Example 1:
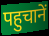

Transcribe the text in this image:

पहुचानें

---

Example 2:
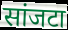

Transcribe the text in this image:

सांजटा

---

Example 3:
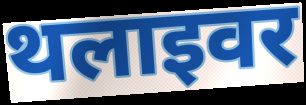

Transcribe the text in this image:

थलाइवर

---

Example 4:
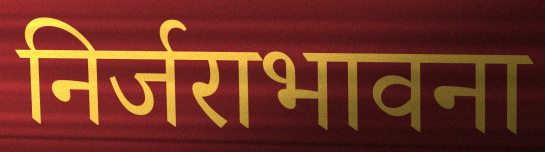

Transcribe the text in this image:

निर्जराभावना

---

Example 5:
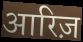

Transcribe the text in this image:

आरिज़